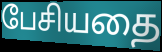
பேசியதை